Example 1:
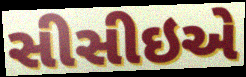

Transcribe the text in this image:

સીસીઇએ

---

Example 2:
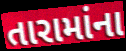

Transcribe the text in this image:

તારામાંના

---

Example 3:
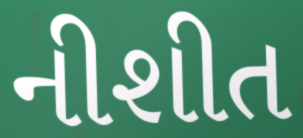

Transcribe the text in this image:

નીશીત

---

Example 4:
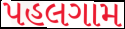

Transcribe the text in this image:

પહલગામ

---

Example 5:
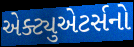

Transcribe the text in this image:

એક્ટ્યુએટર્સનો